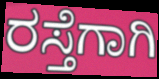
ರಸ್ತೆಗಾಗಿ